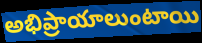
అభిప్రాయాలుంటాయి